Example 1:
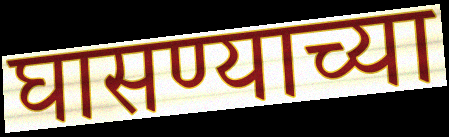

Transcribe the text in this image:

घासण्याच्या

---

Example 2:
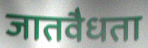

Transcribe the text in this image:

जातवैधता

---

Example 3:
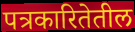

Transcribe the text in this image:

पत्रकारितेतील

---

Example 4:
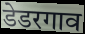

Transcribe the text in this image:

डेडरगाव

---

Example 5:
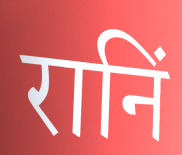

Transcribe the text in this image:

रानिं